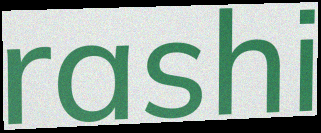
rashi